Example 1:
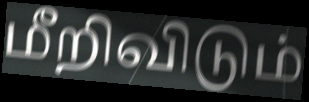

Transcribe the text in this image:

மீறிவிடும்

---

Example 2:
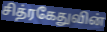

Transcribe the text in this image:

சித்ரகேதுவின்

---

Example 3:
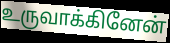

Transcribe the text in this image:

உருவாக்கினேன்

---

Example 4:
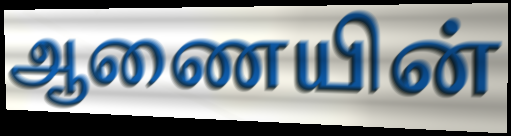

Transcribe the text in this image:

ஆணையின்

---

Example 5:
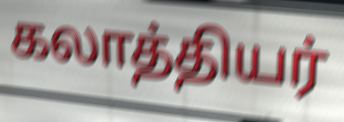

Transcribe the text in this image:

கலாத்தியர்